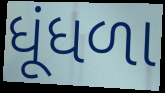
ધૂંધળા